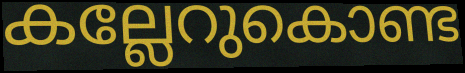
കല്ലേറുകൊണ്ട